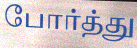
போர்த்து